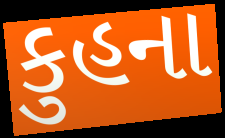
કુહના